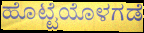
ಹೊಟ್ಟೆಯೊಳಗಡೆ